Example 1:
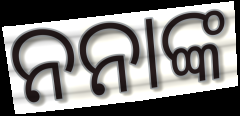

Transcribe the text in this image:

ନନାଙ୍କ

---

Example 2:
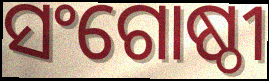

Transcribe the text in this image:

ସଂଗୋଷ୍ଠୀ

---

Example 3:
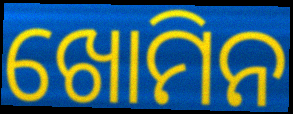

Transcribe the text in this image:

ଖୋମିନ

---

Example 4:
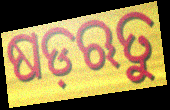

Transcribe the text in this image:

ଷଡ଼ଋତୁ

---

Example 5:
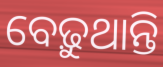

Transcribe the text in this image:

ବେଢ଼ୁଥାନ୍ତି